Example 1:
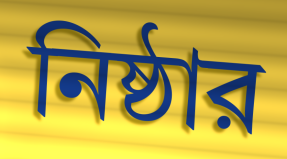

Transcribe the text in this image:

নিষ্ঠার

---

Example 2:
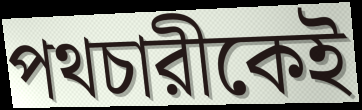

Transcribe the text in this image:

পথচারীকেই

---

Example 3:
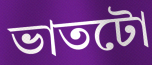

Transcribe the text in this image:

ভাতটো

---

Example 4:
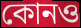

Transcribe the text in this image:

কোনও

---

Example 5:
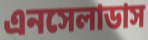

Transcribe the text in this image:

এনসেলাডাস